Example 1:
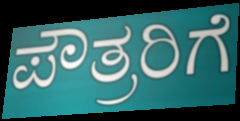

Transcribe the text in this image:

ಪೌತ್ರರಿಗೆ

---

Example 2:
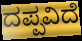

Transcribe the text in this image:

ದಪ್ಪವಿದೆ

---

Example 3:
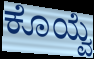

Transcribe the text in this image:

ಕೊಯ್ವೆ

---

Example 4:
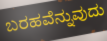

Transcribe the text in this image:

ಬರಹವೆನ್ನುವುದು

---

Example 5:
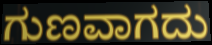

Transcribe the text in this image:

ಗುಣವಾಗದು